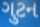
ગુટન